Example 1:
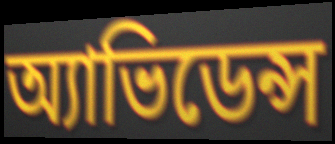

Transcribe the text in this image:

অ্যাভিডেন্স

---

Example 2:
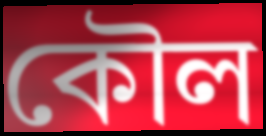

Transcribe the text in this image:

কৌল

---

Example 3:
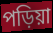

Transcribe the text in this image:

পড়িয়া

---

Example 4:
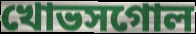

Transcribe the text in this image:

খোভসগোল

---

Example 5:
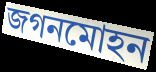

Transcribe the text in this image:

জগনমোহন